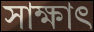
সাক্ষাৎ